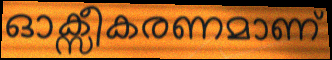
ഓക്സീകരണമാണ്